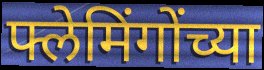
फ्लेमिंगोंच्या